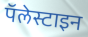
पॅलेस्टाइन